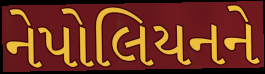
નેપોલિયનને